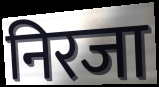
निरजा